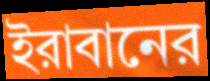
ইরাবানের